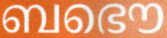
ബഭൌ